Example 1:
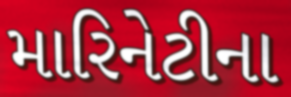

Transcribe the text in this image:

મારિનેટીના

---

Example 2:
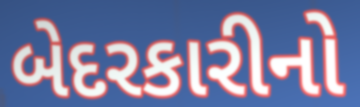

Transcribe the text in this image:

બેદરકારીનો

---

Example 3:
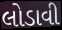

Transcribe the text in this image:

લોડાવી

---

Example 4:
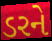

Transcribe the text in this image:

ડરને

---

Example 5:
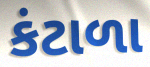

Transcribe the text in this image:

કંટાળા